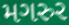
મગરુર